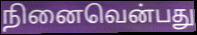
நினைவென்பது